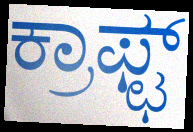
ಕ್ರಾಫ್ಟ್